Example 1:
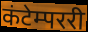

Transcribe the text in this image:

कंटेम्पररी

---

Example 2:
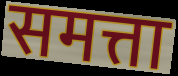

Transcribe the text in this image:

समत्ता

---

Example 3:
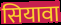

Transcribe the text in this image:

सियावा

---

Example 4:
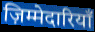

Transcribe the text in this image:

ज़िम्मेदारियाँ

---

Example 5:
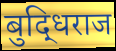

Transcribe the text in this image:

बुद्धिराज